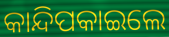
କାନ୍ଦିପକାଇଲେ